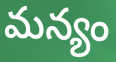
మన్యం